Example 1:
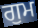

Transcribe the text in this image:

ਗੁਮ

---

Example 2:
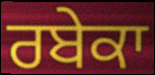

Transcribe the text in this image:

ਰਬੇਕਾ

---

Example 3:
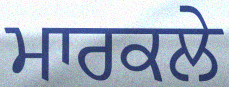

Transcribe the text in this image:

ਮਾਰਕਲੇ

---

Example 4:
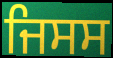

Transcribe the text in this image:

ਜਿਸਸ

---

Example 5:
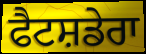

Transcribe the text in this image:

ਫੈਟਸ਼ਡੇਰਾ